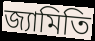
জ্যামিতি